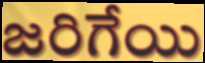
జరిగేయి